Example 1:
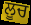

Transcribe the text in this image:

ਲੂਚ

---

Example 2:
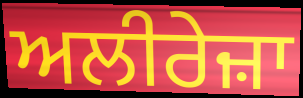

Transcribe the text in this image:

ਅਲੀਰੇਜ਼ਾ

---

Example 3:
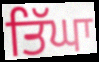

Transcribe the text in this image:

ਤਿੱਘਾ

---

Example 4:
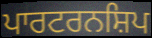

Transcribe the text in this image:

ਪਾਰਟਰਨਸ਼ਿਪ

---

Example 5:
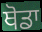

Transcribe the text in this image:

ਥੋਡਾ